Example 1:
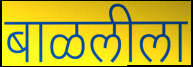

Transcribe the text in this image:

बाळलीला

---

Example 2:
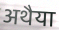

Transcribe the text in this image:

अथैया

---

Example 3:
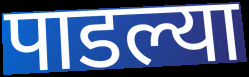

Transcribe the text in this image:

पाडल्या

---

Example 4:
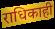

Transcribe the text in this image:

राधिकाही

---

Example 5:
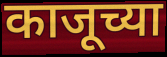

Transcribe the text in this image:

काजूच्या